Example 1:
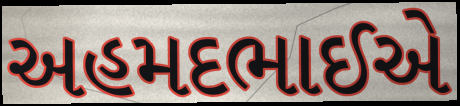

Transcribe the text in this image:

અહમદભાઈએ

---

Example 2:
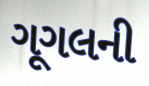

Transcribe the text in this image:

ગૂગલની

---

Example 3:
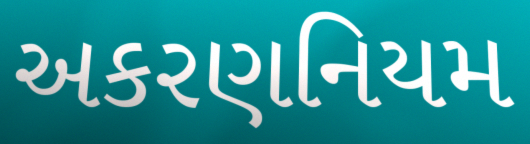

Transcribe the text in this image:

અકરણનિયમ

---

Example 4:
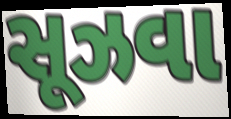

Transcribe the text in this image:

સૂઝવા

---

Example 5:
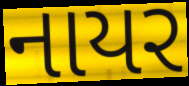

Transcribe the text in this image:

નાયર